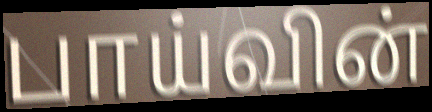
பாய்வின்